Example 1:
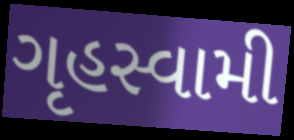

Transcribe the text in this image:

ગૃહસ્વામી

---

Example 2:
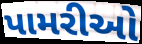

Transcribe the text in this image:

પામરીઓ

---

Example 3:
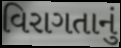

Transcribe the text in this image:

વિરાગતાનું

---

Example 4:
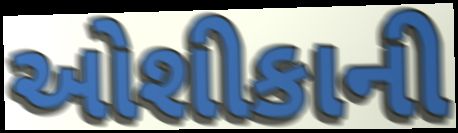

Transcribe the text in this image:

ઓશીકાની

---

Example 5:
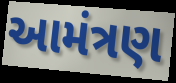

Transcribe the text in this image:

આમંત્રણ